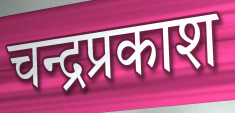
चन्द्रप्रकाश